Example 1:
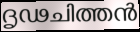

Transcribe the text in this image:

ദൃഢചിത്തൻ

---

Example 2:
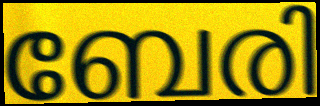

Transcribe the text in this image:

ബേരി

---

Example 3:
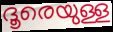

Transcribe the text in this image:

ദൂരെയുള്ള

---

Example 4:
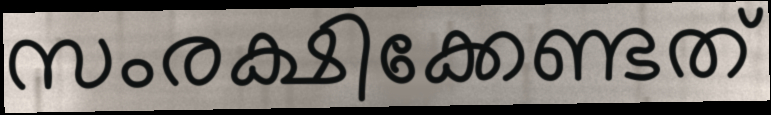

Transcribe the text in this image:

സംരക്ഷിക്കേണ്ടത്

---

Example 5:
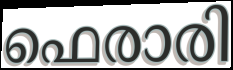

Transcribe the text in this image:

ഫെരാരി